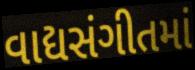
વાદ્યસંગીતમાં